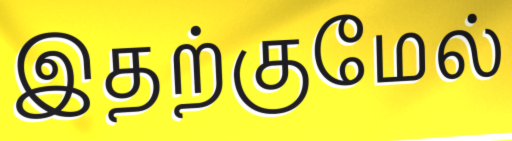
இதற்குமேல்